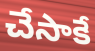
చేసాకే